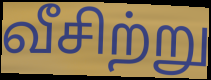
வீசிற்று